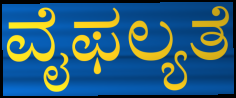
ವೈಫಲ್ಯತೆ